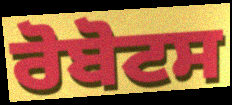
ਰੋਬੋਟਸ